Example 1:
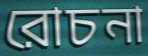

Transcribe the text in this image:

রোচনা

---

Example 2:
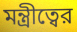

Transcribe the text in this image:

মন্ত্রীত্বের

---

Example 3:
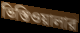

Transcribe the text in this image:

ভিস্তিওয়ালার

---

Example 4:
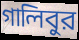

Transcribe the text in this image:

গালিবুর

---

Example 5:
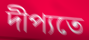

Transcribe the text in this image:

দীপ্যতে